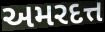
અમરદત્ત